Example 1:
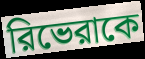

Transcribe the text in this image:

রিভেরাকে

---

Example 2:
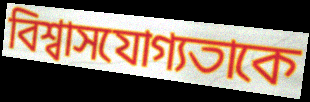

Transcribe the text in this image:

বিশ্বাসযোগ্যতাকে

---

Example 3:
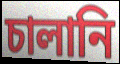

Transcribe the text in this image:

চালানি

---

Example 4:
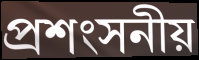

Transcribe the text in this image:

প্রশংসনীয়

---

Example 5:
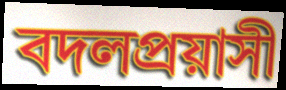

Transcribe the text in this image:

বদলপ্রয়াসী